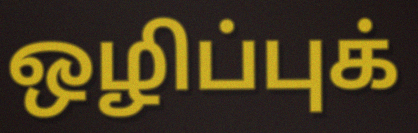
ஒழிப்புக்